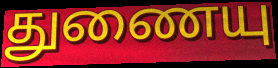
துணையு